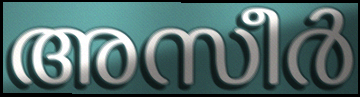
അസീർ